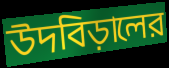
উদবিড়ালের